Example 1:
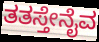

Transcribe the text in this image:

ತತಸ್ತೇನೈವ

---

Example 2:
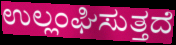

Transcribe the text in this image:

ಉಲ್ಲಂಘಿಸುತ್ತದೆ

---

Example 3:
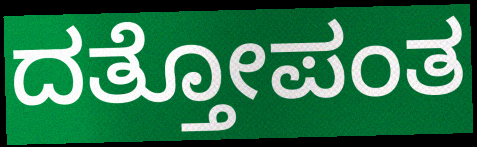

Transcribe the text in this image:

ದತ್ತೋಪಂತ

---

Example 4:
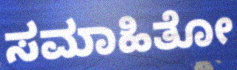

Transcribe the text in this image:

ಸಮಾಹಿತೋ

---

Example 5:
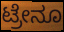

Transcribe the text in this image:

ಟ್ರೇನೂ